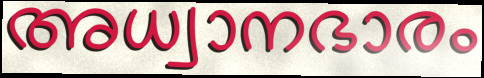
അധ്വാനഭാരം